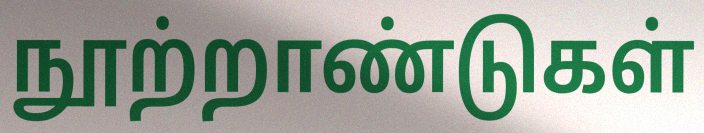
நூற்றாண்டுகள்